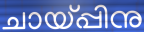
ചായ്പ്പിനു